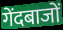
गेंदबाजों